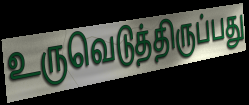
உருவெடுத்திருப்பது